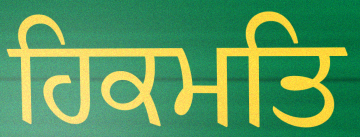
ਹਿਕਮਤਿ